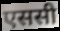
एससी